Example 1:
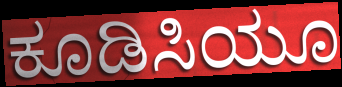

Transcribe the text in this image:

ಕೂಡಿಸಿಯೂ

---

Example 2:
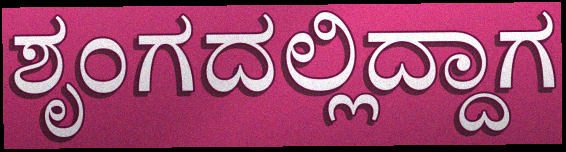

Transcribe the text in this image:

ಶೃಂಗದಲ್ಲಿದ್ದಾಗ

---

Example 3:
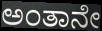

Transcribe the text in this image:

ಅಂತಾನೇ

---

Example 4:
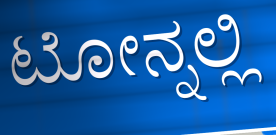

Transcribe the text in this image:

ಟೋನ್ನಲ್ಲಿ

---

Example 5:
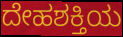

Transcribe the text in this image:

ದೇಹಶಕ್ತಿಯ